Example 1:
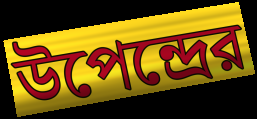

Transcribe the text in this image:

উপেন্দ্রের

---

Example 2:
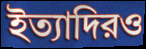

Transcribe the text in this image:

ইত্যাদিরও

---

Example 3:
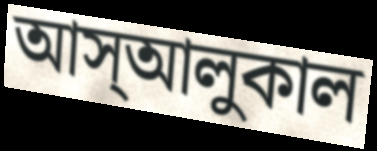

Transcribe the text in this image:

আস্আলুকাল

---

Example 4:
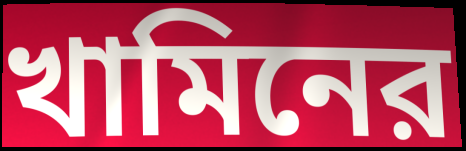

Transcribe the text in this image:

খামিনের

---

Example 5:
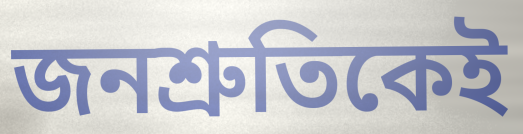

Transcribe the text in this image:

জনশ্রুতিকেই